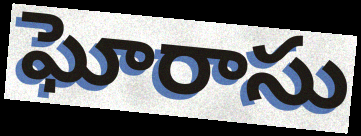
ఘోరాసు